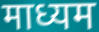
माध्यम